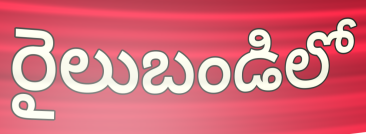
రైలుబండిలో